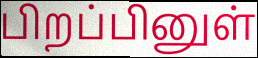
பிறப்பினுள்